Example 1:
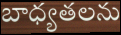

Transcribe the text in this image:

బాధ్యతలను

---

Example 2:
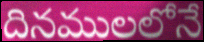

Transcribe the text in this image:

దినములలోనే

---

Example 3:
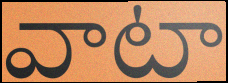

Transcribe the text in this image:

వాటా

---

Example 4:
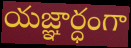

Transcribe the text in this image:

యజ్ఞార్ధంగా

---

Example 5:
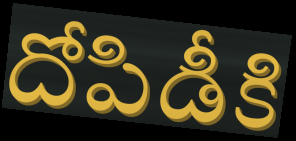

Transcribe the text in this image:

దోపిడీకి